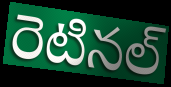
రెటినల్